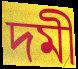
দমী